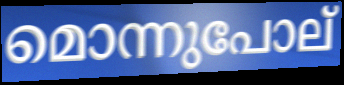
മൊന്നുപോല്